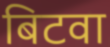
बिटवा